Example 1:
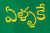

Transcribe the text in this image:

ఏళ్ళకే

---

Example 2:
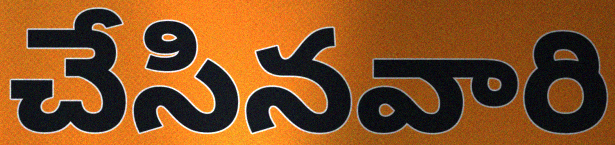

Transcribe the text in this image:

చేసినవారి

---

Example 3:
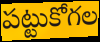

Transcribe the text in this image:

పట్టుకోగల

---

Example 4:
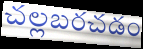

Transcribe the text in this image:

చల్లబరచడం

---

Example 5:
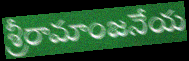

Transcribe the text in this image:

శ్రీరామాంజనేయ